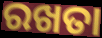
ରଖତା